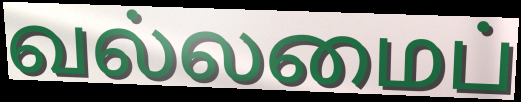
வல்லமைப்